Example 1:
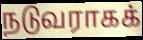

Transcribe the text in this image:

நடுவராகக்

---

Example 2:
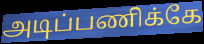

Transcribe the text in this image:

அடிப்பணிக்கே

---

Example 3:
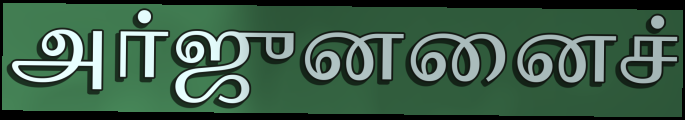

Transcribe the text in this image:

அர்ஜுனனைச்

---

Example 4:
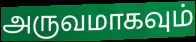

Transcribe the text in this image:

அருவமாகவும்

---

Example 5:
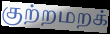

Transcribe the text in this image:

குற்றமறக்